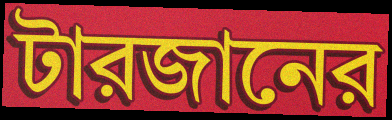
টারজানের